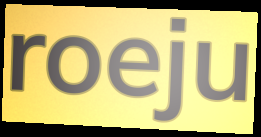
roeju